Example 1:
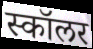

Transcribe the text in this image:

स्कॉलर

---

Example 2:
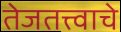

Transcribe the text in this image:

तेजतत्त्वाचे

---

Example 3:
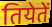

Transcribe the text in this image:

तियेतें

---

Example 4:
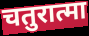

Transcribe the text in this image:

चतुरात्मा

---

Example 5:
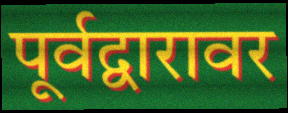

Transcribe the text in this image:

पूर्वद्वारावर